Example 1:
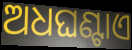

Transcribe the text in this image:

ଅଧଘଣ୍ଟାଏ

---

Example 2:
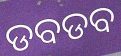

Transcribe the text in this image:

ଡବଡବ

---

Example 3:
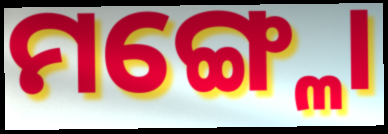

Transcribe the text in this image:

ମଙ୍ଗ୍ଳୋ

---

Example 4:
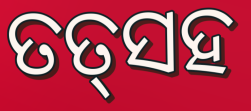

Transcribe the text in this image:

ତତ୍‌ସହ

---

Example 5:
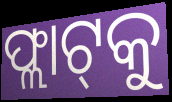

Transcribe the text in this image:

ଫ୍ଲାଟ୍‌କୁ